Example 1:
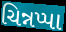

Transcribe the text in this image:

ચિન્નપ્પા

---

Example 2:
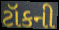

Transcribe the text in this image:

ટૉકની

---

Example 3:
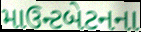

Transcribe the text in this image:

માઉન્ટબેટનના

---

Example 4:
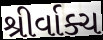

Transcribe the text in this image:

શ્રીર્વાક્ચ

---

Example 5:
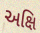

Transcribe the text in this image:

અક્ષિ